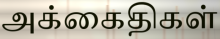
அக்கைதிகள்